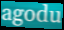
agodu